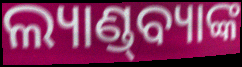
ଲ୍ୟାଣ୍ଡ୍‌ବ୍ୟାଙ୍କ